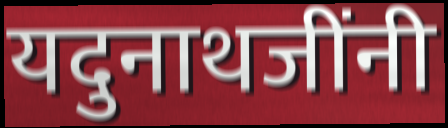
यदुनाथजींनी